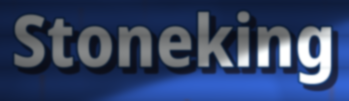
Stoneking